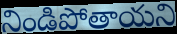
నిండిపోతాయని